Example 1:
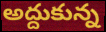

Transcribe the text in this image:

అద్దుకున్న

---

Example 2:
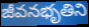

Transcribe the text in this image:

జీవనభృతిని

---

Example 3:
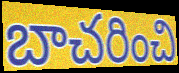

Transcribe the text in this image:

బాచరించి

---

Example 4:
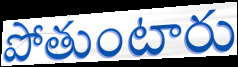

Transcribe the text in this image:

పోతుంటారు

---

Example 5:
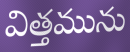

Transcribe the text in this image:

విత్తమును